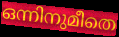
ഒന്നിനുമീതെ